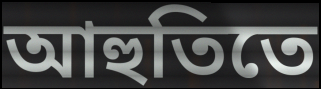
আহুতিতে